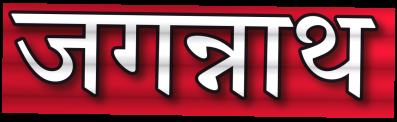
जगन्नाथ